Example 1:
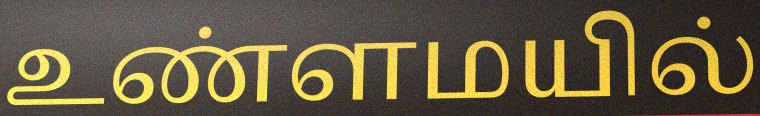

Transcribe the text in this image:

உண்ளமயில்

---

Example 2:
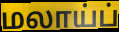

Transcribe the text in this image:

மலாய்ப்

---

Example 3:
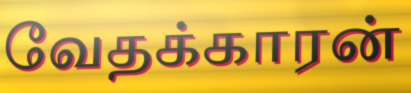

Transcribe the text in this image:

வேதக்காரன்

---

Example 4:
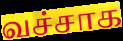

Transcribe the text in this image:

வச்சாக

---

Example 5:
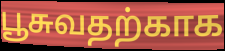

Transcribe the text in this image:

பூசுவதற்காக